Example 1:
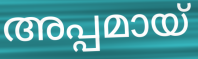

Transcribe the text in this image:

അപ്പമായ്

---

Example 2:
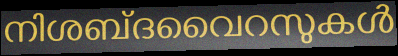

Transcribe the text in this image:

നിശബ്‌ദവൈറസുകൾ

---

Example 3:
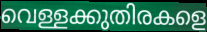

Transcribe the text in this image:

വെള്ളക്കുതിരകളെ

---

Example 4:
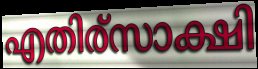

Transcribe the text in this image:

എതിര്സാക്ഷി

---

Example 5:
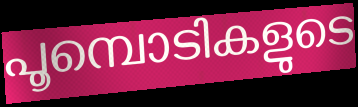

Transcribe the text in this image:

പൂമ്പൊടികളുടെ